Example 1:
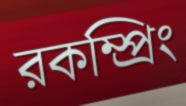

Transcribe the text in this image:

রকম্প্রিং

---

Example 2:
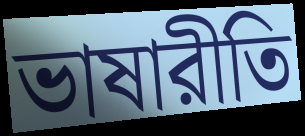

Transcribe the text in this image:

ভাষারীতি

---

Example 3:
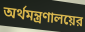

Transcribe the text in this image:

অর্থমন্ত্রণালয়ের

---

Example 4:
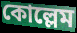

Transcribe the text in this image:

কোল্লেম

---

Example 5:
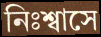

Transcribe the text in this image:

নিঃশ্বাসে